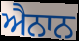
ਐਨਾਨ